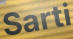
Sarti